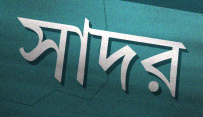
সাদর